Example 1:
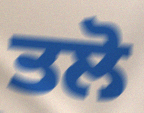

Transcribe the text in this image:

ਤਲੋ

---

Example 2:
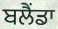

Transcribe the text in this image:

ਬਲੈਂਡਾ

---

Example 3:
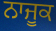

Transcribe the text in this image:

ਨਾਜੂਕ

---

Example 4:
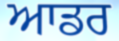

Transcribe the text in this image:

ਆਡਰ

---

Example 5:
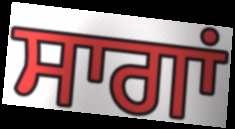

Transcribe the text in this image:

ਸਾਗਾਂ